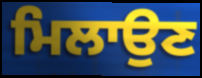
ਮਿਲਾਉਣ